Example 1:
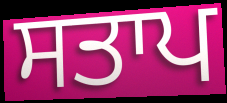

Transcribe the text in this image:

ਸਤਾਪ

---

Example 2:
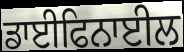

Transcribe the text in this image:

ਡਾਈਫਿਨਾਈਲ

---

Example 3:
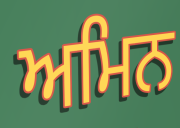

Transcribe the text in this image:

ਅਮਿਨ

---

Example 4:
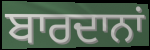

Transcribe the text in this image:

ਬਾਰਦਾਨਾਂ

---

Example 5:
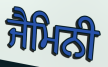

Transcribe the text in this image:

ਜੈਮਿਨੀ